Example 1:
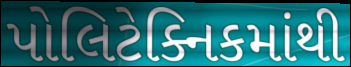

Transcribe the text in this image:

પોલિટેક્નિકમાંથી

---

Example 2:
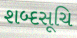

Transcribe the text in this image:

શબ્દસૂચિ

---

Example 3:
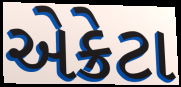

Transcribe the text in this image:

એક્રેટા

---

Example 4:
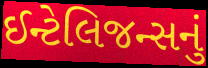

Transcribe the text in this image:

ઈન્ટેલિજન્સનું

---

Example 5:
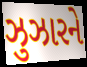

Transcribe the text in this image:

ઝુઝારને